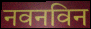
नवनविन